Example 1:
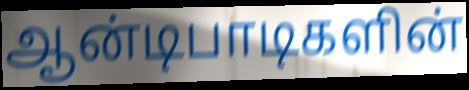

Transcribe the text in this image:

ஆன்டிபாடிகளின்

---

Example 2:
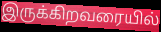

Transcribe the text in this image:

இருக்கிறவரையில்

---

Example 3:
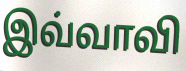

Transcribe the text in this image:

இவ்வாவி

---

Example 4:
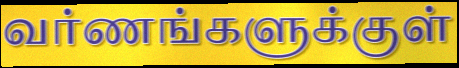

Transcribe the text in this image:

வர்ணங்களுக்குள்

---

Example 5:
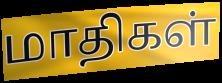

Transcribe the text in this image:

மாதிகள்